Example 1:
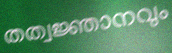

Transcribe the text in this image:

തത്വജ്ഞാനവും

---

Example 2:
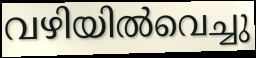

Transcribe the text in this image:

വഴിയിൽവെച്ചു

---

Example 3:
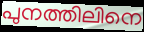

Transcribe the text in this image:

പുനത്തിലിനെ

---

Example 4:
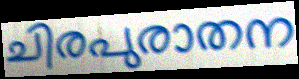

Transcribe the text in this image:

ചിരപുരാതന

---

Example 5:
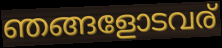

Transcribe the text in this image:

ഞങ്ങളോടവര്